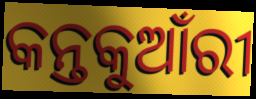
କନ୍ତକୁଆଁରୀ